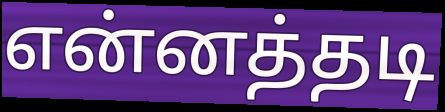
என்னத்தடி